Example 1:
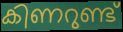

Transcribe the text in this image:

കിണറുണ്ട്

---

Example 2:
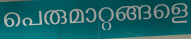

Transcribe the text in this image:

പെരുമാറ്റങ്ങളെ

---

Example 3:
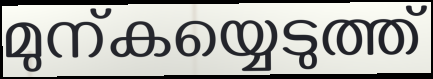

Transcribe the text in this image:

മുന്കയ്യെടുത്ത്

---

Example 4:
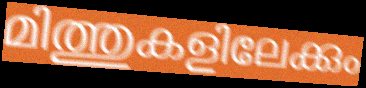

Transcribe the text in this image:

മിത്തുകളിലേക്കും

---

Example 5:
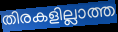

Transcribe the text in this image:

തിരകളില്ലാത്ത